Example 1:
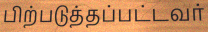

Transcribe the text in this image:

பிற்படுத்தப்பட்டவர்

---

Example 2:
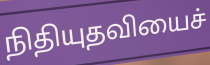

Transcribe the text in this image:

நிதியுதவியைச்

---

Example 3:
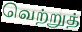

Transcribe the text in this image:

வெற்றுத்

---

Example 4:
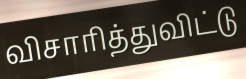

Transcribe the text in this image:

விசாரித்துவிட்டு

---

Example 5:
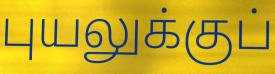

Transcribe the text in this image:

புயலுக்குப்